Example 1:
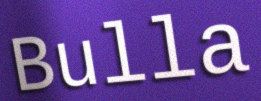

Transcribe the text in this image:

Bulla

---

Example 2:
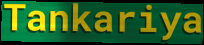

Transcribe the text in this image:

Tankariya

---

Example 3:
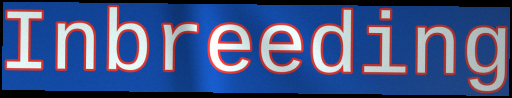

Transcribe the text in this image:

Inbreeding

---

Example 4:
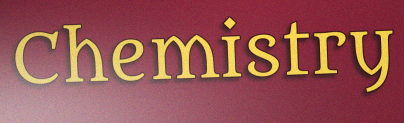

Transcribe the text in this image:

Chemistry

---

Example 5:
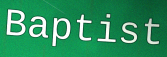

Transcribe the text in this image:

Baptist